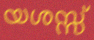
യശസ്സ്